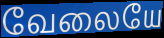
வேலையே